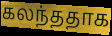
கலந்ததாக